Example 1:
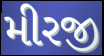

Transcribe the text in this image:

મીરજી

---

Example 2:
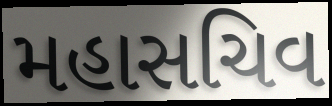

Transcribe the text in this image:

મહાસચિવ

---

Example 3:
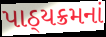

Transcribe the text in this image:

પાઠ્યક્રમનાં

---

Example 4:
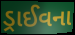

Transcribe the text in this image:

ડ્રાઈવના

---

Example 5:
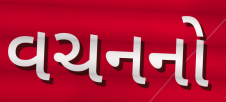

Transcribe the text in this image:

વચનનો